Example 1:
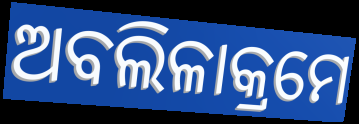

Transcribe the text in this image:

ଅବଲିଳାକ୍ରମେ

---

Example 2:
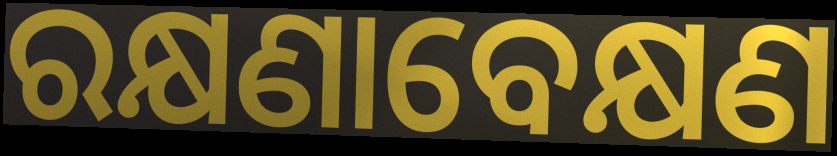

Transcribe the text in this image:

ରକ୍ଷଣାବେକ୍ଷଣ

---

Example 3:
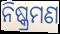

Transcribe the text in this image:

ନିଷ୍କ୍ରମଣ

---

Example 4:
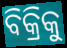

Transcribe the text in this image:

ବିକ୍ରିକୁ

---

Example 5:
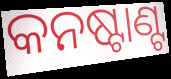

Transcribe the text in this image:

କନଷ୍ଟାଣ୍ଟ